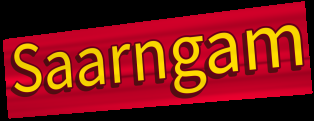
Saarngam